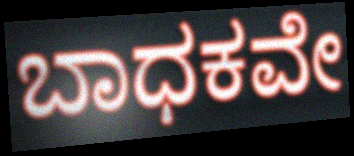
ಬಾಧಕವೇ